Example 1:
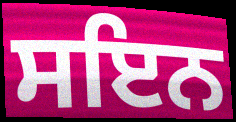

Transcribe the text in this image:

ਸਇਨ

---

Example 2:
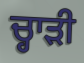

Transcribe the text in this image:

ਚ੍ਹਾੜੀ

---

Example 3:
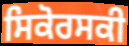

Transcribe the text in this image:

ਸਿਕੋਰਸਕੀ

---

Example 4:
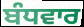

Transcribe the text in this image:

ਬੰਧਵਾਰ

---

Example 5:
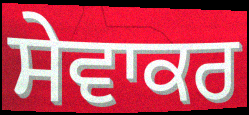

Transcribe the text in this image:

ਸੇਵਾਕਰ